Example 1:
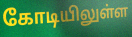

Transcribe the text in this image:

கோடியிலுள்ள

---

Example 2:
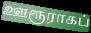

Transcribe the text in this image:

ஊரூராகப்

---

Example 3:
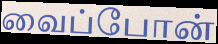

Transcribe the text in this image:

வைப்போன்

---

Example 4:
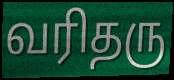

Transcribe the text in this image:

வரிதரு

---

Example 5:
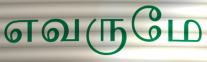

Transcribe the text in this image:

எவருமே